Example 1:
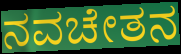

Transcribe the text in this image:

ನವಚೇತನ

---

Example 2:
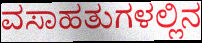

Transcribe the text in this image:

ವಸಾಹತುಗಳಲ್ಲಿನ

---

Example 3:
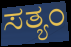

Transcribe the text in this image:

ಸತ್ಯಂ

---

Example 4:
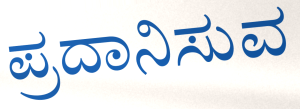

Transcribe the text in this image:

ಪ್ರದಾನಿಸುವ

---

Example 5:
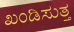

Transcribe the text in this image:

ಖಂಡಿಸುತ್ತ